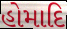
હોમાદિ